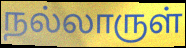
நல்லாருள்